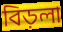
বিড়লা